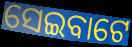
ସେଇବାଟେ